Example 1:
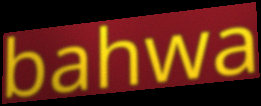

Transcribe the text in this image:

bahwa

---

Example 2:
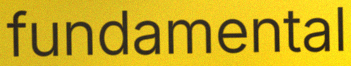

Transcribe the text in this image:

fundamental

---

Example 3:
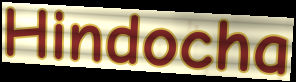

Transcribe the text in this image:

Hindocha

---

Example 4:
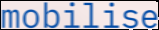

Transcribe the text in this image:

mobilise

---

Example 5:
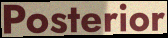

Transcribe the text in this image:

Posterior